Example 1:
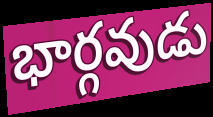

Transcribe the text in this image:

భార్గవుడు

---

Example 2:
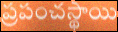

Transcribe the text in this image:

ప్రపంచస్థాయి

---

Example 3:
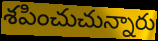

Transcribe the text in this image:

శపించుచున్నారు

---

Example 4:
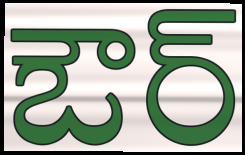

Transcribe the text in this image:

ఔర్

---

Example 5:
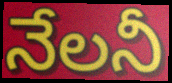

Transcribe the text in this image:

నేలనీ